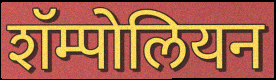
शॅम्पोलियन